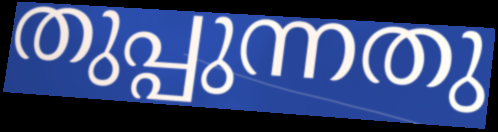
തുപ്പുന്നതു